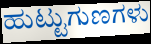
ಹುಟ್ಟುಗುಣಗಳು